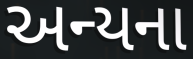
અન્યના